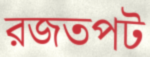
রজতপট